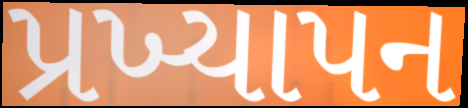
પ્રખ્યાપન